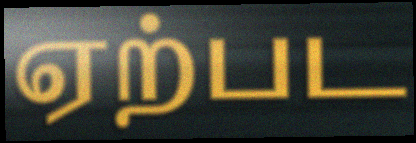
ஏற்பட